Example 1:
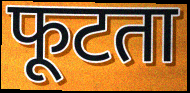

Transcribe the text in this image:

फूटता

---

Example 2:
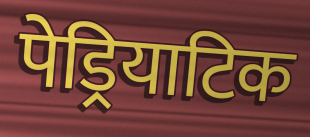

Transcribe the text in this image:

पेड्रियाटिक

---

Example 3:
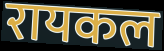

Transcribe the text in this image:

रायकल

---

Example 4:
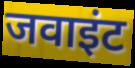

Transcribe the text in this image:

जवाइंट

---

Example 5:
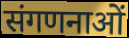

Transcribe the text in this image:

संगणनाओं